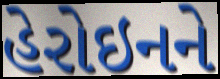
હેરોઇનને